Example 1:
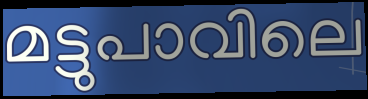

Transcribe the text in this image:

മട്ടുപാവിലെ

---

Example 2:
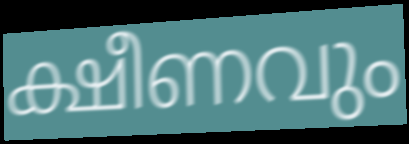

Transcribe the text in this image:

ക്ഷീണവും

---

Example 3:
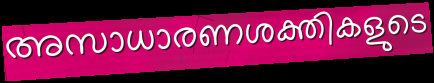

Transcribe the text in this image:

അസാധാരണശക്തികളുടെ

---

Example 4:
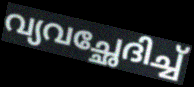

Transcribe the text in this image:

വ്യവച്ഛേദിച്ച്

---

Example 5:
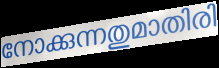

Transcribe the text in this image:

നോക്കുന്നതുമാതിരി